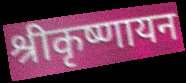
श्रीकृष्णायन